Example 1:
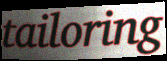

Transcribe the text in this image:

tailoring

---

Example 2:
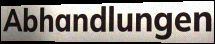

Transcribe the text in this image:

Abhandlungen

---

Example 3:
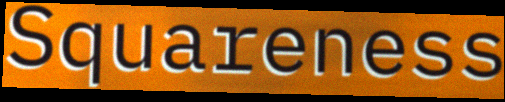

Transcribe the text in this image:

Squareness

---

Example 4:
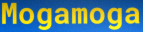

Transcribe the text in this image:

Mogamoga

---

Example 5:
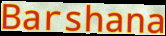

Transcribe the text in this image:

Barshana